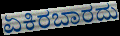
ಏಕಿರಬಾರದು